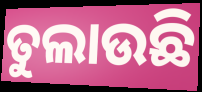
ତୁଲାଉଛି